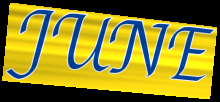
JUNE